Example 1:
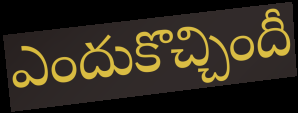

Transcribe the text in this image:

ఎందుకొచ్చిందీ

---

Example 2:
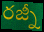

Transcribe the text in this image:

రజ్నీ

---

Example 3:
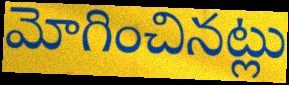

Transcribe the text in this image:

మోగించినట్లు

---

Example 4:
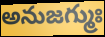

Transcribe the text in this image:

అనుజగ్ముః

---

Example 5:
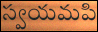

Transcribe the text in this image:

స్వయమపి